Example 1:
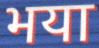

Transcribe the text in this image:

भया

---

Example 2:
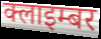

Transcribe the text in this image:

क्लाइम्बर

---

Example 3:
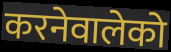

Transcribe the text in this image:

करनेवालेको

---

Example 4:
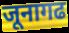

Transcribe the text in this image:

जूनागढ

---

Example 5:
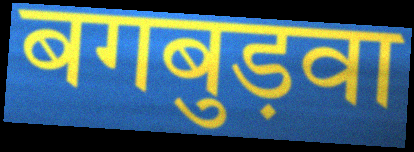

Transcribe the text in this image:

बगबुड़वा